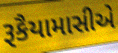
રૂકૈયામાસીએ